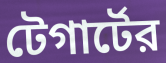
টেগার্টের